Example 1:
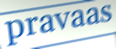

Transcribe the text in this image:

pravaas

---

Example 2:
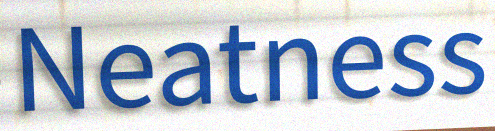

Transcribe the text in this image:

Neatness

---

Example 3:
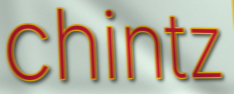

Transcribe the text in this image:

chintz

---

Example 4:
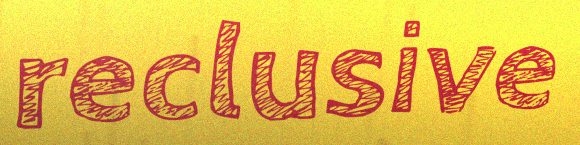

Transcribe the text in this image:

reclusive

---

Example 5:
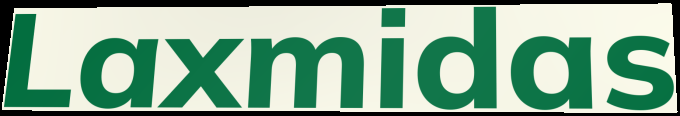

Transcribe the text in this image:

Laxmidas